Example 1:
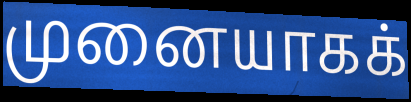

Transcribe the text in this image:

முனையாகக்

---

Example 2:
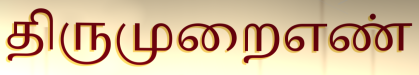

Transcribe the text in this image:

திருமுறைஎண்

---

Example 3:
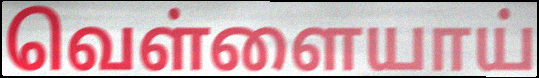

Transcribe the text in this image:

வெள்ளையாய்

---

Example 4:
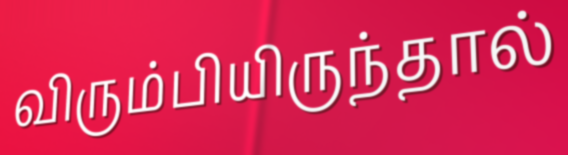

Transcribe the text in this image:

விரும்பியிருந்தால்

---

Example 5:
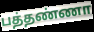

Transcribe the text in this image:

பத்தண்ணா